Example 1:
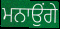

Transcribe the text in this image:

ਮਨਾਉਂਗੇ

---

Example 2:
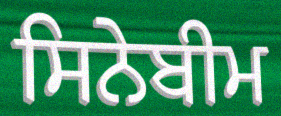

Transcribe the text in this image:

ਸਿਨੇਬੀਮ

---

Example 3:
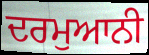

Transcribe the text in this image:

ਦਰਮੁਆਨੀ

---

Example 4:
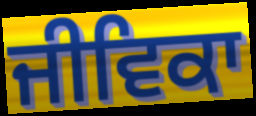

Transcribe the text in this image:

ਜੀਵਿਕਾ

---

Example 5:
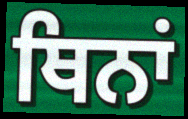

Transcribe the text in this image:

ਥਿਨਾਂ